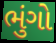
ભુંગો